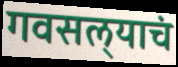
गवसल्याचं